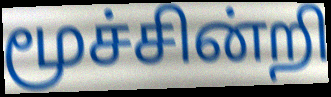
மூச்சின்றி